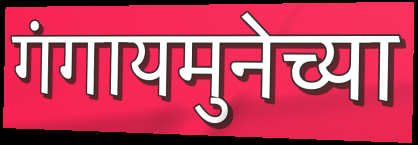
गंगायमुनेच्या